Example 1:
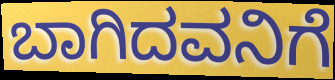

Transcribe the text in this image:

ಬಾಗಿದವನಿಗೆ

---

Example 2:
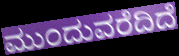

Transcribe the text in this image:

ಮುಂದುವರೆದಿದೆ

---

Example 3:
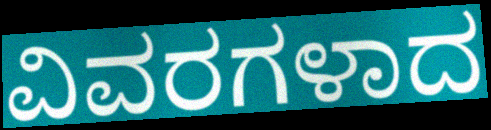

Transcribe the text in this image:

ವಿವರಗಳಾದ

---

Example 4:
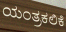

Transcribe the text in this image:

ಯಂತ್ರಕಲಿಕೆ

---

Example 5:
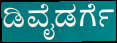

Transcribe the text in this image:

ಡಿವೈಡರ್ಗೆ